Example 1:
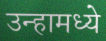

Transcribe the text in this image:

उन्हामध्ये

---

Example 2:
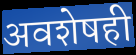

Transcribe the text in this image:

अवशेषही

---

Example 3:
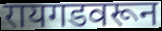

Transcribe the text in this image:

रायगडवरून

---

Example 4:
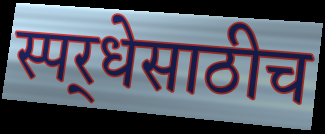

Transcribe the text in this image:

स्पर्धेसाठीच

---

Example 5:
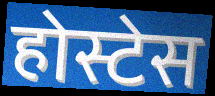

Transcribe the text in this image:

होस्टेस